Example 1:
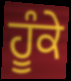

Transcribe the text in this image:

ਹੂੰਕੇ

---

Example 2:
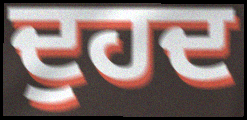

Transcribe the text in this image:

ਦੁਹਦ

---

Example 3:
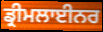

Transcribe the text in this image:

ਡ੍ਰੀਮਲਾਈਨਰ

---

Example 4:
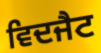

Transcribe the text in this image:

ਵਿਦਜੈਟ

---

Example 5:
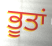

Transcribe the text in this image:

ਭੂਤਾਂ